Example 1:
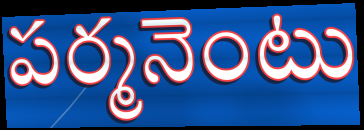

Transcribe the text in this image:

పర్మనెంటు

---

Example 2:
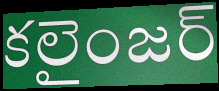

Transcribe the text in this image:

కలైంజర్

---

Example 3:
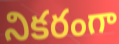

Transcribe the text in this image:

నికరంగా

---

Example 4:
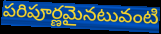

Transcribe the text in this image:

పరిపూర్ణమైనటువంటి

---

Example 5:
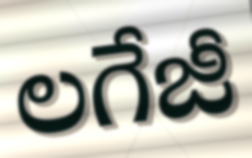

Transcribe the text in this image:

లగేజీ